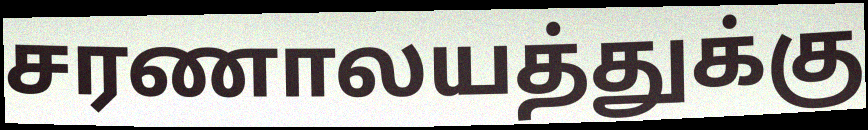
சரணாலயத்துக்கு